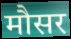
मौसर